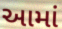
આમાં